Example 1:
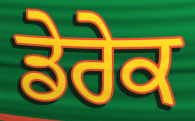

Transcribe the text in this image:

ਡੇਰੇਕ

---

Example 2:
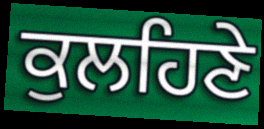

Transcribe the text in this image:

ਕੁਲਹਿਣੇ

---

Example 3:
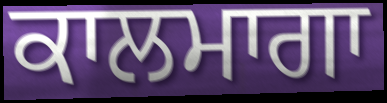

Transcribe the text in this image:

ਕਾਲਮਾਗਾ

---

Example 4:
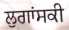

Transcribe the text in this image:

ਲੁਗਾਂਸਕੀ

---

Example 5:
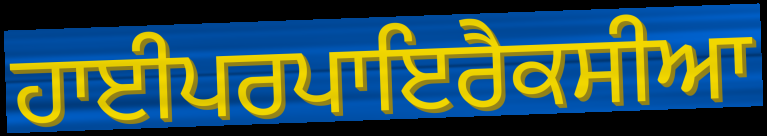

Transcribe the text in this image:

ਹਾਈਪਰਪਾਇਰੈਕਸੀਆ